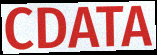
CDATA